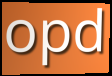
opd